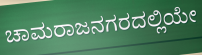
ಚಾಮರಾಜನಗರದಲ್ಲಿಯೇ